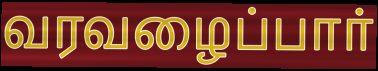
வரவழைப்பார்